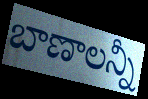
బాణాలన్నీ